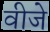
वीजे